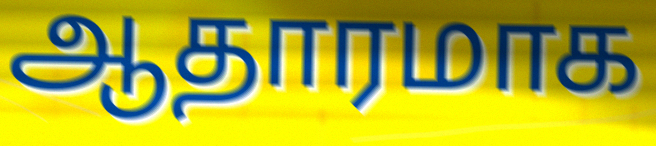
ஆதாரமாக